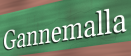
Gannemalla